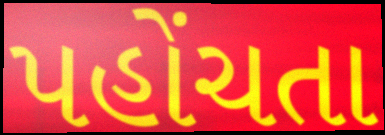
પહોંચતા